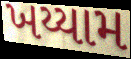
ખય્યામ